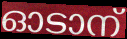
ഓടാന്